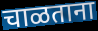
चाळताना